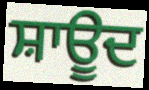
ਸ਼ਾਊਦ